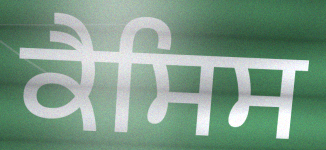
ਕੈਸਿਸ